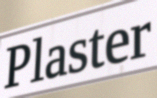
Plaster